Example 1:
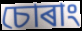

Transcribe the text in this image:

চোৰাং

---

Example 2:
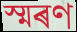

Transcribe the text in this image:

স্মৰণ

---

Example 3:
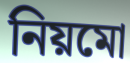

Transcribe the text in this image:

নিয়মো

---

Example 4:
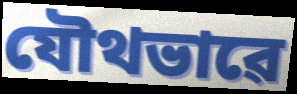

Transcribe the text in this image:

যৌথভাৱে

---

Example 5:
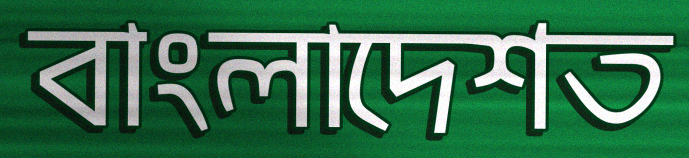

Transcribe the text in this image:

বাংলাদেশত